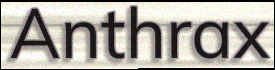
Anthrax